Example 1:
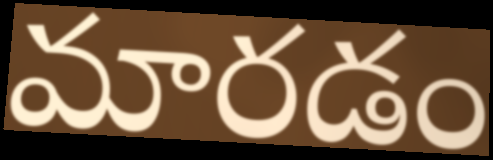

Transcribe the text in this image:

మారడం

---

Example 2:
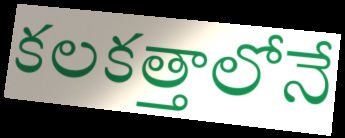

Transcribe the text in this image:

కలకత్తాలోనే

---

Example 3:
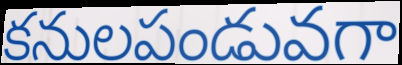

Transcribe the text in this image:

కనులపండువగా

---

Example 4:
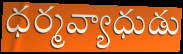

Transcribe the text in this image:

ధర్మవ్యాధుడు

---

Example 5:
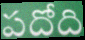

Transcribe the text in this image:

పదోది